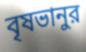
বৃষভানুর